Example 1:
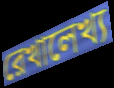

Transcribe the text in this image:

রেখালেখ্য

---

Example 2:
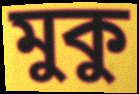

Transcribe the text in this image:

মুকু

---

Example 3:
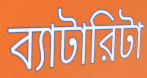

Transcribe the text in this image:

ব্যাটারিটা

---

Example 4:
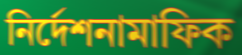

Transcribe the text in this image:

নির্দেশনামাফিক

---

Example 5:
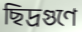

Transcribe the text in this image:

ছিদ্রগুণে